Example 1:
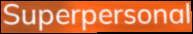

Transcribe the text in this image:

Superpersonal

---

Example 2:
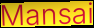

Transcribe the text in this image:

Mansai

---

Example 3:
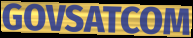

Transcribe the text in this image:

GOVSATCOM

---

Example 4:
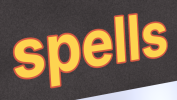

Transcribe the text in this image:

spells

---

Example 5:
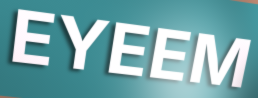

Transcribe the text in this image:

EYEEM